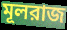
মূলরাজ